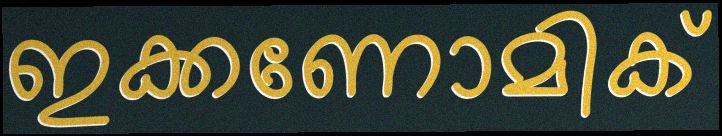
ഇക്കണോമിക്